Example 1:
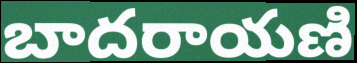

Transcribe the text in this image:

బాదరాయణి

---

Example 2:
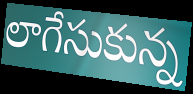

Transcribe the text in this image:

లాగేసుకున్న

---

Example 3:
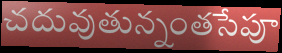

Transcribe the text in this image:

చదువుతున్నంతసేపూ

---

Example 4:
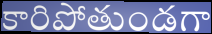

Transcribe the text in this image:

కారిపోతుండగా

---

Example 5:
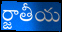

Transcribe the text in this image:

ర్జాతీయ